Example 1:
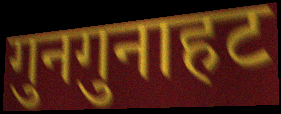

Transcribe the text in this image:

गुनगुनाहट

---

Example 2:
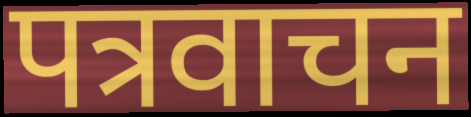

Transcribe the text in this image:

पत्रवाचन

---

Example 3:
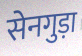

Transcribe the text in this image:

सेनगुड़ा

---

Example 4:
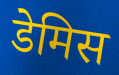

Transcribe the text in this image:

डेमिस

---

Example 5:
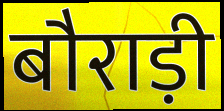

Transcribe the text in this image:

बौराड़ी